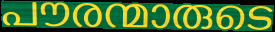
പൗരന്മാരുടെ